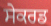
ਸੇਕਰਡ